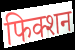
फिक्शन